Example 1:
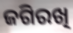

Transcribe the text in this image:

ଜଗିରଖି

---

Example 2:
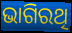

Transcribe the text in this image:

ଭାଗିରଥି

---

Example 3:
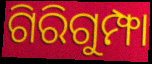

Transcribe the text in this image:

ଗିରିଗୁମ୍ଫା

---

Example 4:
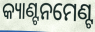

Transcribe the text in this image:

କ୍ୟାଣ୍ଟନମେଣ୍ଟ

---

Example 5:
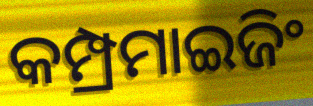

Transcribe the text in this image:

କମ୍ପ୍ରମାଇଜିଂ